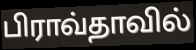
பிராவ்தாவில்